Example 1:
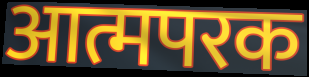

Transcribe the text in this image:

आत्मपरक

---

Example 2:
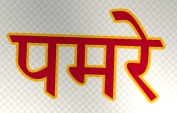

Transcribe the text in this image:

पमरे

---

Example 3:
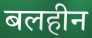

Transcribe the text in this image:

बलहीन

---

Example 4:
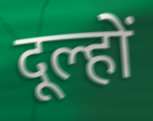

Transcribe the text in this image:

दूल्‍हों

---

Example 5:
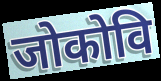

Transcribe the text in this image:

जोकोवि